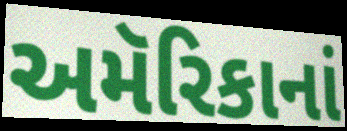
અમૅરિકાનાં